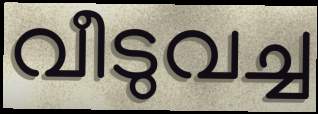
വീടുവച്ച